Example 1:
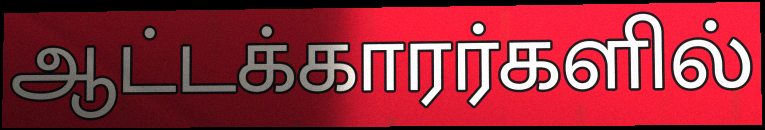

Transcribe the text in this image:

ஆட்டக்காரர்களில்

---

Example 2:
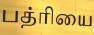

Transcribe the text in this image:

பத்ரியை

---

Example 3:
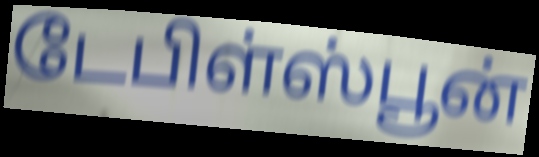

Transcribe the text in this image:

டேபிள்ஸ்பூன்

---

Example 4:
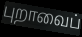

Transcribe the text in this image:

புறாவைப்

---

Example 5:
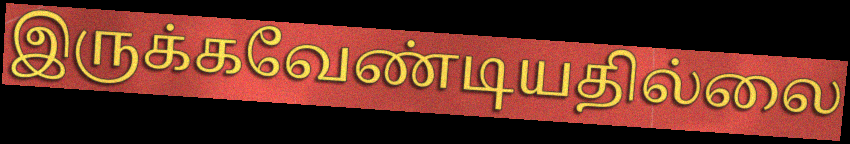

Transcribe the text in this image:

இருக்கவேண்டியதில்லை